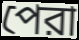
পেরা